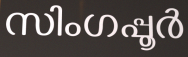
സിംഗപ്പൂർ